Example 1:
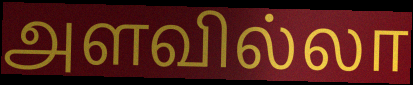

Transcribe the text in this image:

அளவில்லா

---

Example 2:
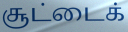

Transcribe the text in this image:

சூட்டைக்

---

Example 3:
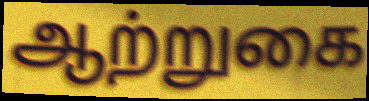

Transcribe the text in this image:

ஆற்றுகை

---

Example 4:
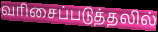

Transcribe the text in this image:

வரிசைப்படுத்தலில்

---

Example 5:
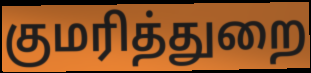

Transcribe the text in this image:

குமரித்துறை